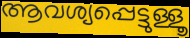
ആവശ്യപ്പെട്ടുള്ളൂ